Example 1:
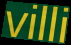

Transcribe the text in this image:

villi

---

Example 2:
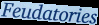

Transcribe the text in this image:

Feudatories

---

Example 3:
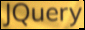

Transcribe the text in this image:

JQuery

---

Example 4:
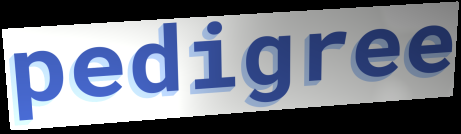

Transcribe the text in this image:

pedigree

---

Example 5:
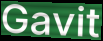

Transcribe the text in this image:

Gavit